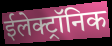
ईलेक्ट्रॉनिक